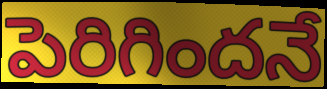
పెరిగిందనే